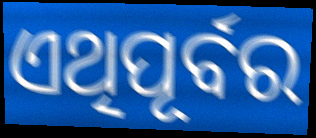
ଏଥିପୂର୍ବର